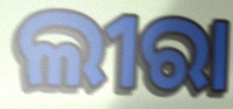
ଲୀରା